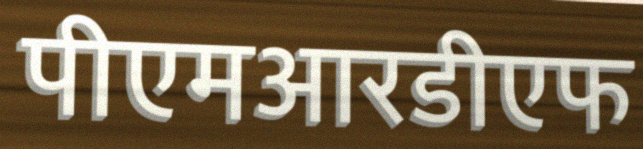
पीएमआरडीएफ